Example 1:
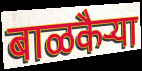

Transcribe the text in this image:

बाळकैऱ्या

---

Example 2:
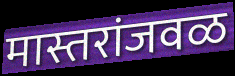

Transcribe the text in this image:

मास्तरांजवळ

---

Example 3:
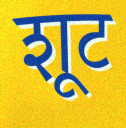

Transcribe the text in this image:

शूट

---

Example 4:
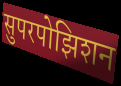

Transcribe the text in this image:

सुपरपोझिशन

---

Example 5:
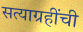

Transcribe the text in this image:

सत्याग्रहींची